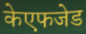
केएफजेड